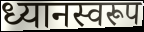
ध्यानस्वरूप